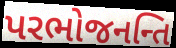
પરભોજનન્તિ